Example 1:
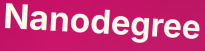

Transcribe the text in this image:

Nanodegree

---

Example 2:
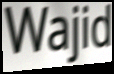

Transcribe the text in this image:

Wajid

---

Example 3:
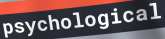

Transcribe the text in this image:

psychological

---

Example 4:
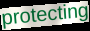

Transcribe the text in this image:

protecting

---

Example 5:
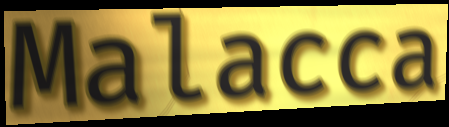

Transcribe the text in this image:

Malacca